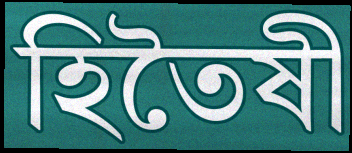
হিতৈষী